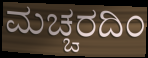
ಮಚ್ಚರದಿಂ